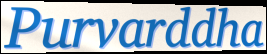
Purvarddha